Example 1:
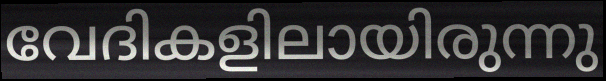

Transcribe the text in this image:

വേദികളിലായിരുന്നു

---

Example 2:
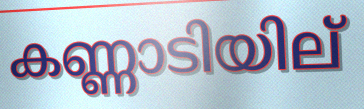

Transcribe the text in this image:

കണ്ണാടിയില്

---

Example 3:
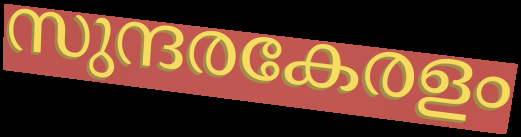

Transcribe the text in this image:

സുന്ദരകേരളം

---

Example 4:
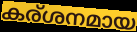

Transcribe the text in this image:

കര്ശനമായ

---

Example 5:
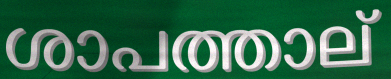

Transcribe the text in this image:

ശാപത്താല്